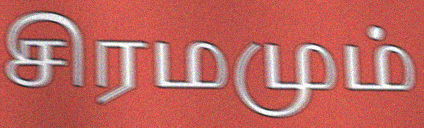
சிரமமும்